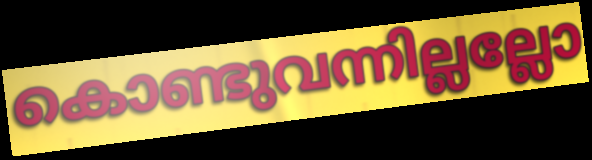
കൊണ്ടുവന്നില്ലല്ലോ